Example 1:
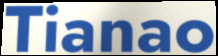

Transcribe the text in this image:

Tianao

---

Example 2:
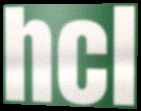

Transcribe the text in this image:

hcl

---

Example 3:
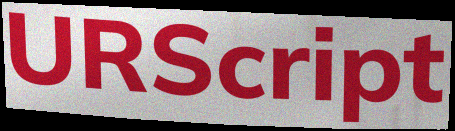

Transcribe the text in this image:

URScript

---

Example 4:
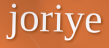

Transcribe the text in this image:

joriye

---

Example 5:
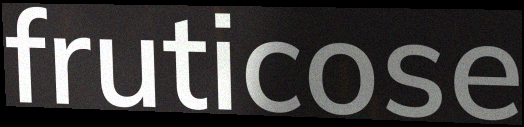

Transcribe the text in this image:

fruticose